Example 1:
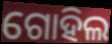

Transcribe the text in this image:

ଗୋହିଲ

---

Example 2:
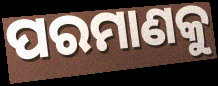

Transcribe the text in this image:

ପରମାଣକୁ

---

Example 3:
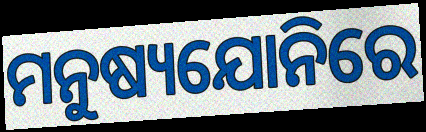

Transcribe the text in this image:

ମନୁଷ୍ୟଯୋନିରେ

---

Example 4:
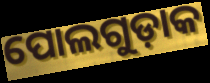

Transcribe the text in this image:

ପୋଲଗୁଡ଼ାକ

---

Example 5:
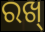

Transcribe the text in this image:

ରଖ୍